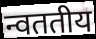
न्वततीय